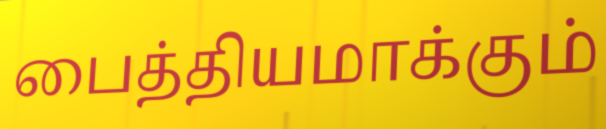
பைத்தியமாக்கும்